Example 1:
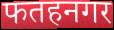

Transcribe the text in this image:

फतहनगर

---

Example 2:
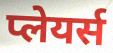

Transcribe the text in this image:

प्लेयर्स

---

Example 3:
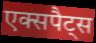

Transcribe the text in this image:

एक्सपैट्स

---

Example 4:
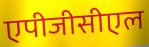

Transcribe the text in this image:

एपीजीसीएल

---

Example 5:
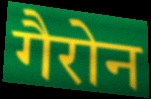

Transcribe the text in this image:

गैरोन